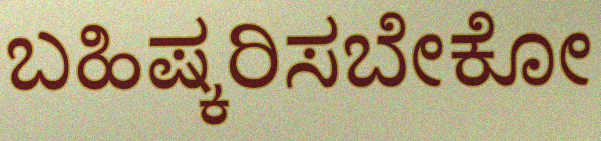
ಬಹಿಷ್ಕರಿಸಬೇಕೋ